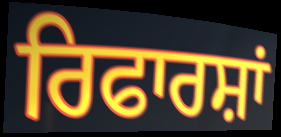
ਰਿਫਾਰਸ਼ਾਂ